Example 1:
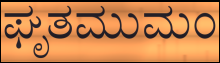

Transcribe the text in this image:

ಘೃತಮುಮಂ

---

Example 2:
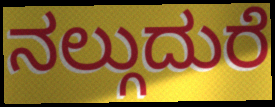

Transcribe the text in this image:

ನಲ್ಗುದುರೆ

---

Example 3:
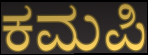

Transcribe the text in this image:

ಕಮಪಿ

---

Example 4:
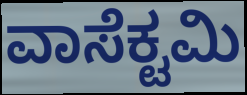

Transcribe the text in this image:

ವಾಸೆಕ್ಟಮಿ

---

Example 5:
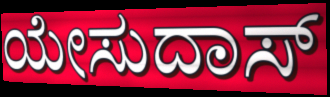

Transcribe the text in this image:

ಯೇಸುದಾಸ್